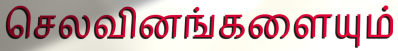
செலவினங்களையும்